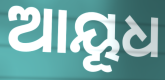
ଆୟୂଧ